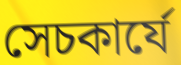
সেচকার্যে